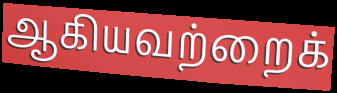
ஆகியவற்றைக்